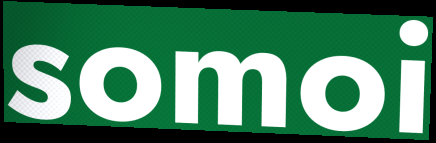
somoi